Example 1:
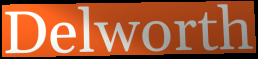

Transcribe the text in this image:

Delworth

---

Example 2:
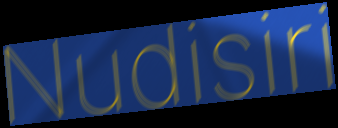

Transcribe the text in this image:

Nudisiri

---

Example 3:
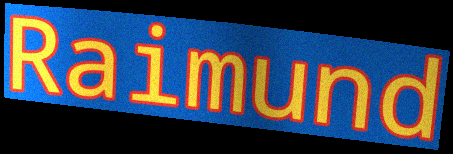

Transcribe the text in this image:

Raimund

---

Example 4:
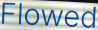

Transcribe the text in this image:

Flowed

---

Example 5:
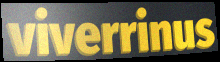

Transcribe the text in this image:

viverrinus